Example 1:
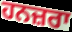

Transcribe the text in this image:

ਹਨਜ਼ਰਾ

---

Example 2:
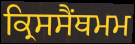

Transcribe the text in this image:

ਕ੍ਰਿਸਸੈਂਥਮਮ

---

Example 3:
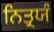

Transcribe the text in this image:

ਨਿਤ੍ਰਯੰ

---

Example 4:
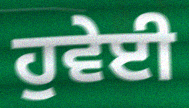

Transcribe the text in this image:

ਹੁਵੇਈ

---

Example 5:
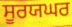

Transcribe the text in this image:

ਸੂਰਯਘਰ